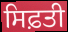
ਸਿਫ਼ਤੀ